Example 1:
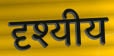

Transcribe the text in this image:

दृश्यीय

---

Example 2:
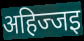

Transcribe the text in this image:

अहिज्जइ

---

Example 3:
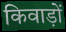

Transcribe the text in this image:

किवाड़ों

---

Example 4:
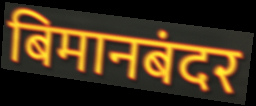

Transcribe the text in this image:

बिमानबंदर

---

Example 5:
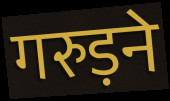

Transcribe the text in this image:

गरुड़ने